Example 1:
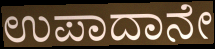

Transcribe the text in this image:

ಉಪಾದಾನೇ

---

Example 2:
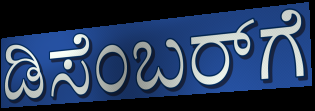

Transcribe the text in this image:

ಡಿಸೆಂಬರ್‌ಗೆ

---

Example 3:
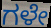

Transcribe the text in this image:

ಗಳೇ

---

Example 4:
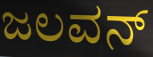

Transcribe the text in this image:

ಜಲವನ್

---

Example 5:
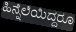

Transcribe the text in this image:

ಹಿನ್ನೆಲೆಯಿದ್ದರೂ